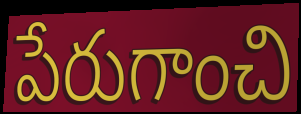
పేరుగాంచి